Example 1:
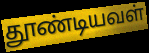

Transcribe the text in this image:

தூண்டியவள்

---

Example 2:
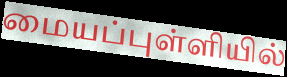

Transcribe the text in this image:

மையப்புள்ளியில்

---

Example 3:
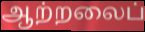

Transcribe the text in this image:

ஆற்றலைப்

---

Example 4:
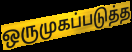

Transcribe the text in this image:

ஒருமுகப்படுத்த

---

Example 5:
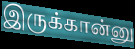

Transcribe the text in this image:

இருக்கான்னு